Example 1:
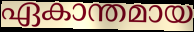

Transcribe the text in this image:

ഏകാന്തമായ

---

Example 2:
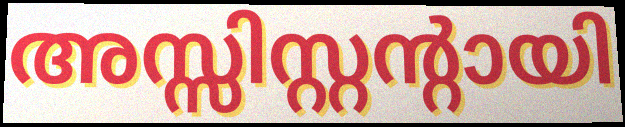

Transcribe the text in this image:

അസ്സിസ്റ്റന്റായി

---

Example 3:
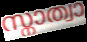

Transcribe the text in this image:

സ്നാത്വാ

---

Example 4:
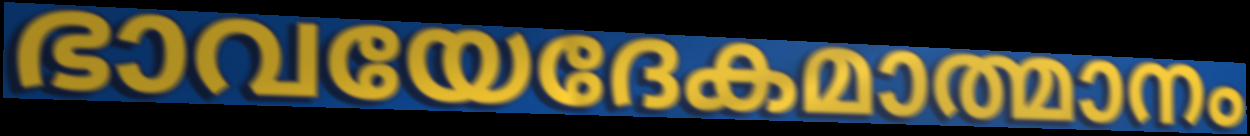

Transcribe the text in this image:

ഭാവയേദേകമാത്മാനം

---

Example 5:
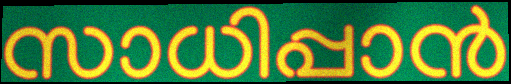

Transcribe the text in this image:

സാധിപ്പാൻ